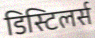
डिस्टिलर्स